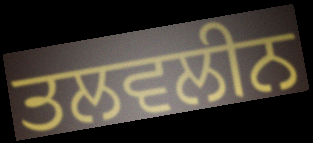
ਤਲਵਲੀਨ